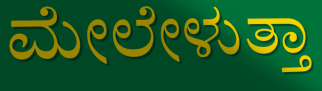
ಮೇಲೇಳುತ್ತಾ